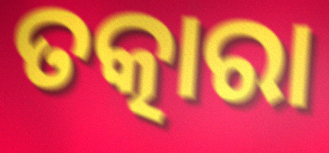
ତତ୍କାରା